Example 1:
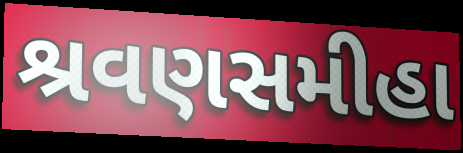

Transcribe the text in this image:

શ્રવણસમીહા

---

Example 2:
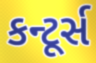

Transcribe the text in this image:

કન્ટૂર્સ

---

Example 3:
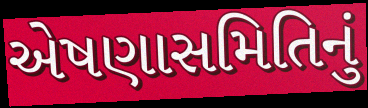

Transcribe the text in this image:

એષણાસમિતિનું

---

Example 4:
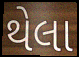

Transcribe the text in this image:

થેલા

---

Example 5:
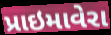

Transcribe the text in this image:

પ્રાઇમાવેરા